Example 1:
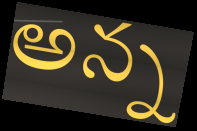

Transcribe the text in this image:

అన్న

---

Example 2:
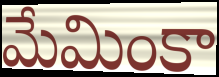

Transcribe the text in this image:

మేమింకా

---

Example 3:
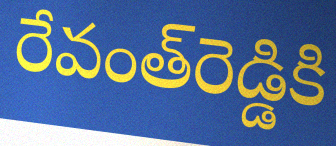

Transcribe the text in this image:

రేవంత్‌రెడ్డికి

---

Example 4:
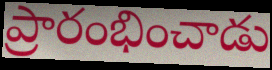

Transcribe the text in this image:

ప్రారంభించాడు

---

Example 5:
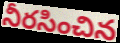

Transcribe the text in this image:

నీరసించిన